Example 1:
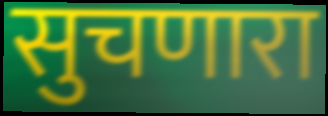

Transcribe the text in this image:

सुचणारा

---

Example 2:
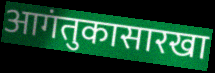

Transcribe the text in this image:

आगंतुकासारखा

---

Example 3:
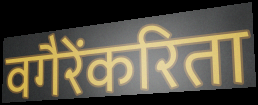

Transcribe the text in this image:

वगैरेंकरिता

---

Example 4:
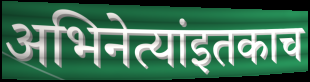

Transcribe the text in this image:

अभिनेत्यांइतकाच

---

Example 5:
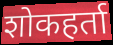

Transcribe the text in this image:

शोकहर्ता